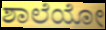
ಶಾಲೆಯೋ